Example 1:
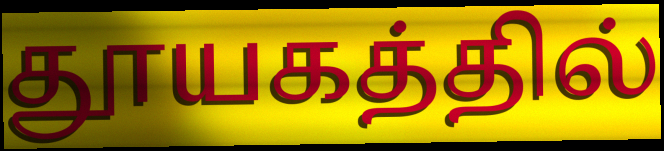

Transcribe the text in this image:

தூயகத்தில்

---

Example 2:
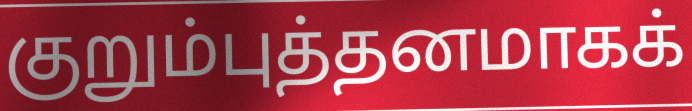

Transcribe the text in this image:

குறும்புத்தனமாகக்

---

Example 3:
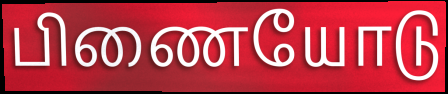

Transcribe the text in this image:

பிணையோடு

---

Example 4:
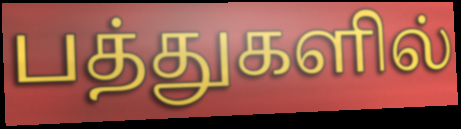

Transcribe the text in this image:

பத்துகளில்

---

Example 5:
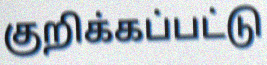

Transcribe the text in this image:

குறிக்கப்பட்டு